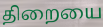
திறையை